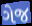
ગેજ